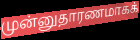
முன்னுதாரணமாகக்